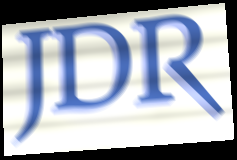
JDR